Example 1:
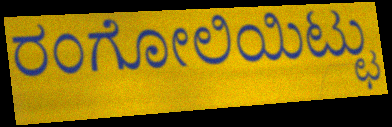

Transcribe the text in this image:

ರಂಗೋಲಿಯಿಟ್ಟು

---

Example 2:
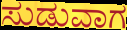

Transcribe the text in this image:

ಸುಡುವಾಗ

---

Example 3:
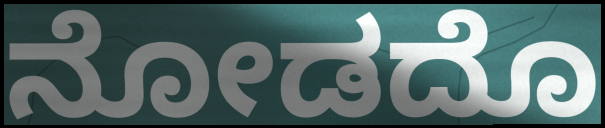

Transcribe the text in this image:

ನೋಡದೊ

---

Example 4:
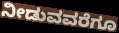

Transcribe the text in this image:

ನೀಡುವವರೆಗೂ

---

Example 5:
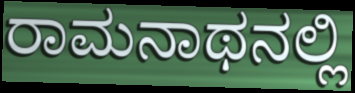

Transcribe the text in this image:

ರಾಮನಾಥನಲ್ಲಿ